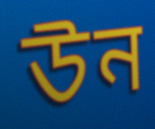
উন